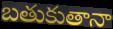
బతుకుతానా